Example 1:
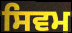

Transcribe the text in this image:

ਸਿਵਮ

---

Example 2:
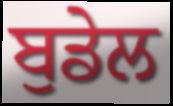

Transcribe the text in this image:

ਬੁਡੇਲ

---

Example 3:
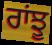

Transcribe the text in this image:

ਰਾਂਝੂ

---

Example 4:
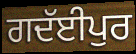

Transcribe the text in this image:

ਗਦੱਈਪੁਰ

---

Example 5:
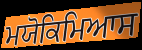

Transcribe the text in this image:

ਮਯੋਕਿਮਿਆਸ